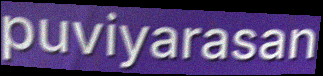
puviyarasan